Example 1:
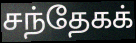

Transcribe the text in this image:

சந்தேகக்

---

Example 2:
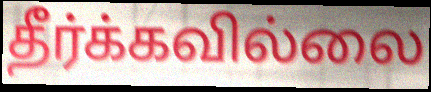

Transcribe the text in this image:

தீர்க்கவில்லை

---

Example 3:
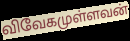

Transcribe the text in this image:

விவேகமுள்ளவன்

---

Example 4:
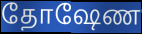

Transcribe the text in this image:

தோஷேண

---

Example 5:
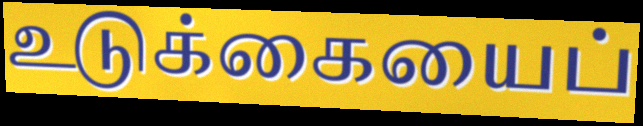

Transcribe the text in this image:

உடுக்கையைப்